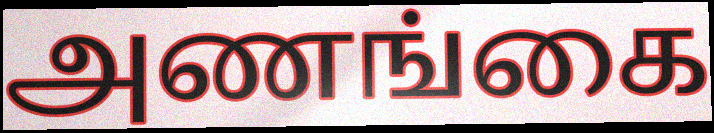
அணங்கை